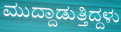
ಮುದ್ದಾಡುತ್ತಿದ್ದಳು